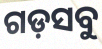
ଗଡ଼ସବୁ